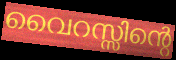
വൈറസ്സിന്റെ